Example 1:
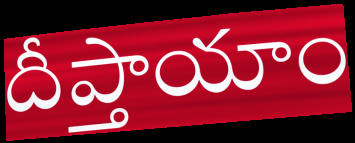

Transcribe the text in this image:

దీప్తాయాం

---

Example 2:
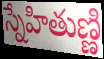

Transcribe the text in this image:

స్నేహితుణ్ణి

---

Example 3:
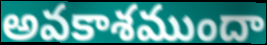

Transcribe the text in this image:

అవకాశముందా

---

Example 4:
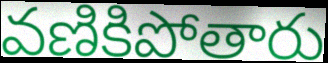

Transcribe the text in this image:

వణికిపోతారు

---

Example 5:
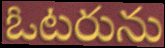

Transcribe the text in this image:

ఓటరును